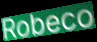
Robeco